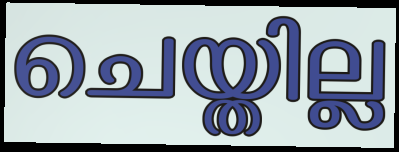
ചെയ്തില്ല